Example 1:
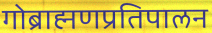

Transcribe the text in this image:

गोब्राह्मणप्रतिपालन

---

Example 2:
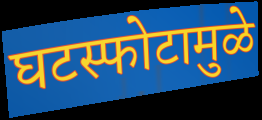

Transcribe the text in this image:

घटस्फोटामुळे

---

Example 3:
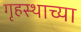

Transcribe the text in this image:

गृहस्थाच्या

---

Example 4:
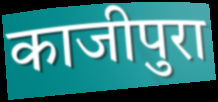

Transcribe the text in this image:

काजीपुरा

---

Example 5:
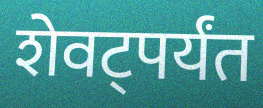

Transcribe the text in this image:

शेवट्पर्यंत